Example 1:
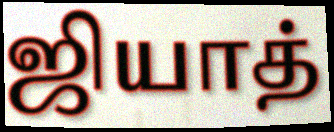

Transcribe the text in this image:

ஜியாத்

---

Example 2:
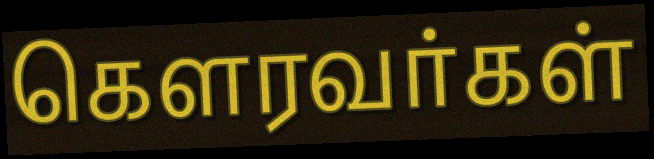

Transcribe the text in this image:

கெளரவர்கள்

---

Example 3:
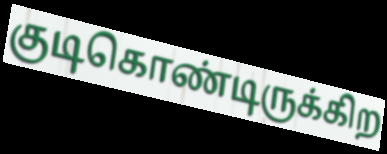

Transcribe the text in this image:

குடிகொண்டிருக்கிற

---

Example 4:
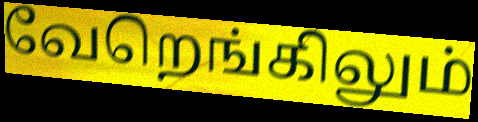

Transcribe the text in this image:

வேறெங்கிலும்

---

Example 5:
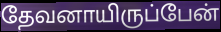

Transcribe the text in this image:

தேவனாயிருப்பேன்